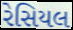
રેસિયલ